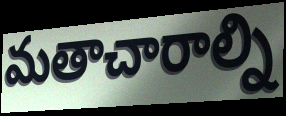
మతాచారాల్ని